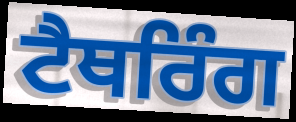
ਟੈਥਰਿੰਗ